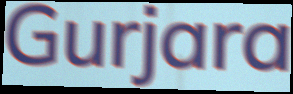
Gurjara